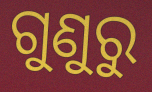
ଗୁଣୁରୁ